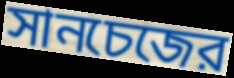
সানচেজের